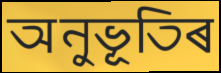
অনুভূতিৰ